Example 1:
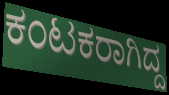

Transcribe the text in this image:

ಕಂಟಕರಾಗಿದ್ದ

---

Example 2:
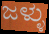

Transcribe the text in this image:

ಜಳ್ಳು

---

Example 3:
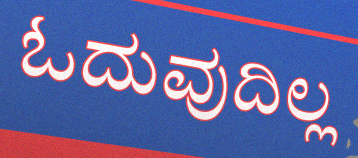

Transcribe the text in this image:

ಓದುವುದಿಲ್ಲ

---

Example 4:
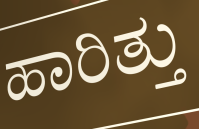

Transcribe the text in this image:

ಹಾರಿತ್ತು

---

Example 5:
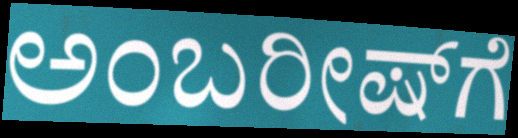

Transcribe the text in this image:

ಅಂಬರೀಷ್‌ಗೆ